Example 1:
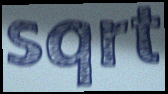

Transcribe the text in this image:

sqrt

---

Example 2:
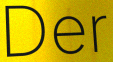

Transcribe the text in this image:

Der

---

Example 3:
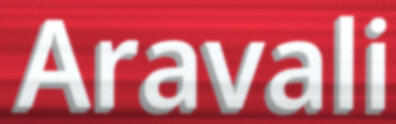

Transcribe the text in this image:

Aravali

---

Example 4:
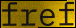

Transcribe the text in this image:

fref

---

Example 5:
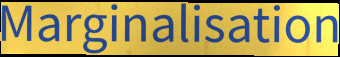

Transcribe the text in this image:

Marginalisation